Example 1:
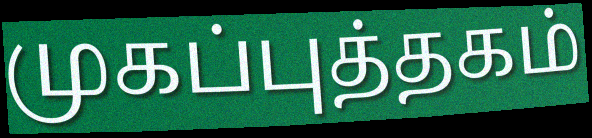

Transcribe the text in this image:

முகப்புத்தகம்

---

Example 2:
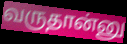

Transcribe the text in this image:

வருதான்னு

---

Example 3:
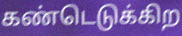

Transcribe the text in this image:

கண்டெடுக்கிற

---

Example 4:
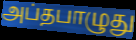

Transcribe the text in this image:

அப்தபாழுது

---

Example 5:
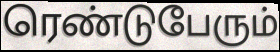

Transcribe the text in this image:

ரெண்டுபேரும்